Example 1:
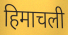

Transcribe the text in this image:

हिमाचली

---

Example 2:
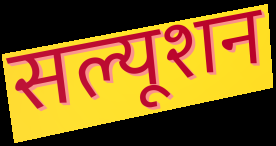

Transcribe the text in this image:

सल्यूशन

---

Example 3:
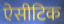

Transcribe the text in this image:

ऐसीटिक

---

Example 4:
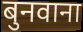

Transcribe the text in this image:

बुनवाना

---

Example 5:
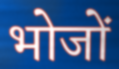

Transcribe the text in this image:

भोजों